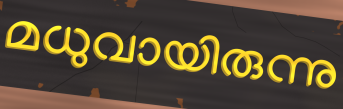
മധുവായിരുന്നു